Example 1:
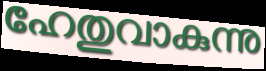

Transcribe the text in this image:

ഹേതുവാകുന്നു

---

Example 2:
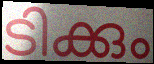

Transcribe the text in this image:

ടിക്കും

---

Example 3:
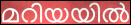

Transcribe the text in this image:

മറിയയിൽ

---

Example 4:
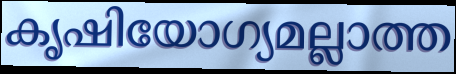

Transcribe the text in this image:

കൃഷിയോഗ്യമല്ലാത്ത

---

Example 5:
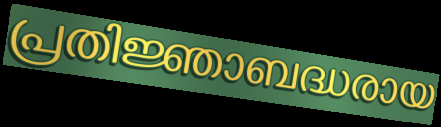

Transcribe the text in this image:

പ്രതിജ്ഞാബദ്ധരായ